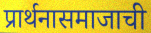
प्रार्थनासमाजाची